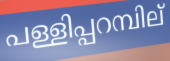
പള്ളിപ്പറമ്പില്